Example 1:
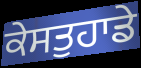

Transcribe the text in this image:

ਕੇਸਤੁਹਾਡੇ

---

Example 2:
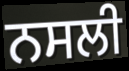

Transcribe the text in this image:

ਨਸਲੀ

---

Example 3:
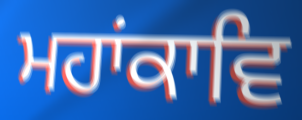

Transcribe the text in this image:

ਮਹਾਂਕਾਵਿ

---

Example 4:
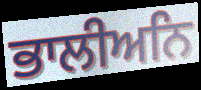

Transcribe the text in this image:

ਭਾਲੀਅਨਿ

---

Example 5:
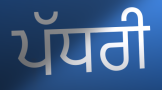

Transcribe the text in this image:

ਪੱਧਰੀ